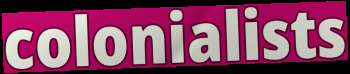
colonialists